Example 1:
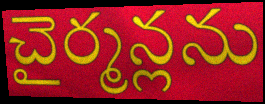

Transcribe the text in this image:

చైర్మన్లను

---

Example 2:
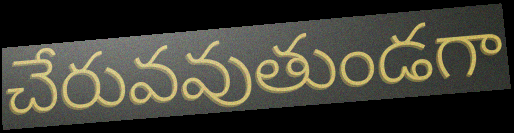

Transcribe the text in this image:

చేరువవుతుండగా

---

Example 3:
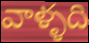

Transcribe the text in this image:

వాళ్ళది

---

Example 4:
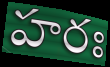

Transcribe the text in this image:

హరః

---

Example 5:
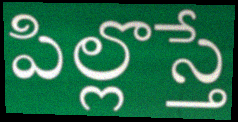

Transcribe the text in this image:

పిల్లొస్తే